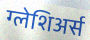
ग्लेशिअर्स